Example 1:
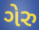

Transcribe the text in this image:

ગેરુ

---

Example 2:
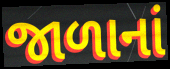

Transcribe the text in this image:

જાળાનાં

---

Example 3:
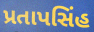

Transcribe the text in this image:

પ્રતાપસિંહ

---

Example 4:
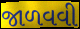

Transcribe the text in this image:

જાળવવી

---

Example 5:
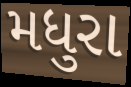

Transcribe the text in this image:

મધુરા